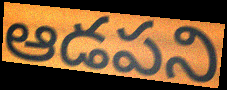
ఆడపని